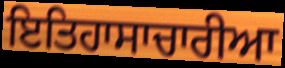
ਇਤਿਹਾਸਾਚਾਰੀਆ